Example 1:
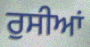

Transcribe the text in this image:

ਰੁਸੀਆਂ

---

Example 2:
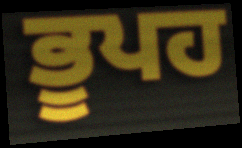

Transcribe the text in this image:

ਭੂਪਹ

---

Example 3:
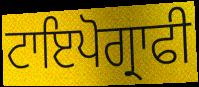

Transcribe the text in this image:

ਟਾਇਪੋਗ੍ਰਾਫੀ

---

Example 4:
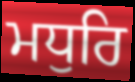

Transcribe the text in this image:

ਮਧੁਰਿ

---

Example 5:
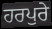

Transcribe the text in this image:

ਹਰਪੁਰੇ